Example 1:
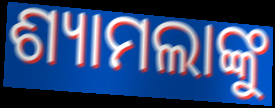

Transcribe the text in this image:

ଶ୍ୟାମଲାଙ୍କୁ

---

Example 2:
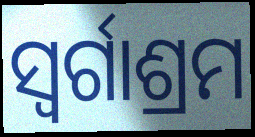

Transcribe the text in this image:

ସ୍ୱର୍ଗାଶ୍ରମ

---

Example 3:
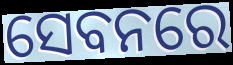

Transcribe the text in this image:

ସେବନରେ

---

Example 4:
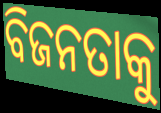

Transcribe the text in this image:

ବିଜନତାକୁ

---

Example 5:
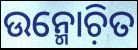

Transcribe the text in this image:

ଉନ୍ମୋଚ଼ିତ